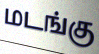
மடங்கு